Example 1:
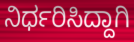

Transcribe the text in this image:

ನಿರ್ಧರಿಸಿದ್ದಾಗಿ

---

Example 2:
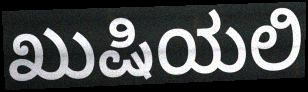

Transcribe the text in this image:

ಖುಷಿಯಲಿ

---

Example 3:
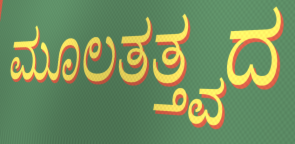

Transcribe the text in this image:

ಮೂಲತತ್ತ್ವದ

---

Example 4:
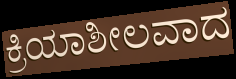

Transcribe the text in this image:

ಕ್ರಿಯಾಶೀಲವಾದ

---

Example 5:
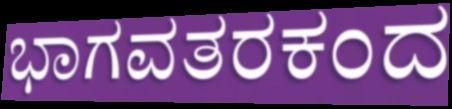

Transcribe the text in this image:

ಭಾಗವತರಕಂದ